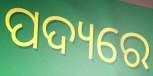
ପଦ୍ୟରେ